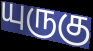
யுருகு